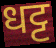
धट्ट